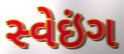
સ્વેઇંગ